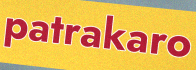
patrakaro